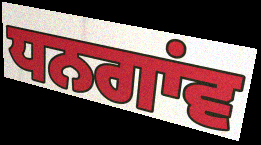
ਧਨਗਾਂਵ